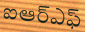
ఐఆర్ఎఫ్